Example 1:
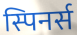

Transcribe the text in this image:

स्पिनर्स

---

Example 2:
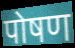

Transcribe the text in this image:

पोषण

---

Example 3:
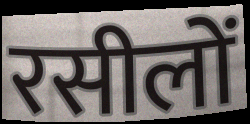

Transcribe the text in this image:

रसीलों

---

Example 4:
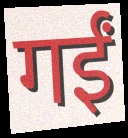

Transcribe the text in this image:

गईं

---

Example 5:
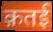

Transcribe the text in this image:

क़तई